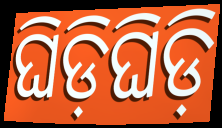
ଘିଡ଼ିଘିଡ଼ି